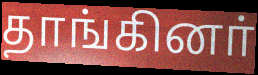
தாங்கினர்